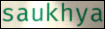
saukhya